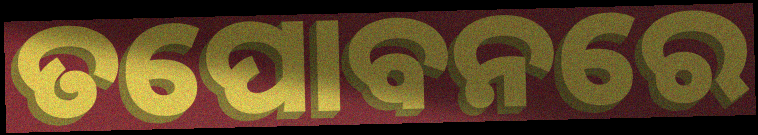
ତପୋବନରେ